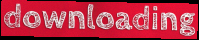
downloading